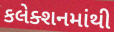
કલેક્શનમાંથી